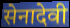
सेनादेवी